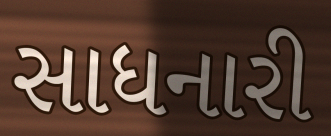
સાધનારી